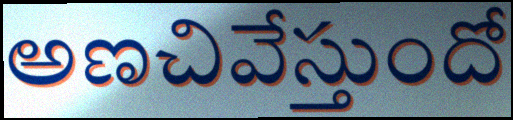
అణచివేస్తుందో